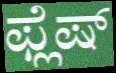
ಫ್ಲೆಷ್